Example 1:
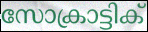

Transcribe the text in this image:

സോക്രാട്ടിക്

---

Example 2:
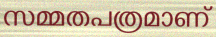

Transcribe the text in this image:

സമ്മതപത്രമാണ്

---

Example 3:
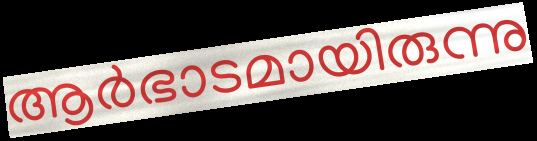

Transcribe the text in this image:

ആർഭാടമായിരുന്നു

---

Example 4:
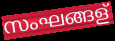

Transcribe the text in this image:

സംഘങ്ങള്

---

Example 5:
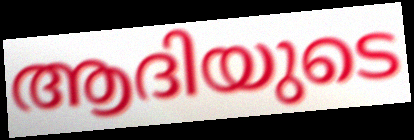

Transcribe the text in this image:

ആദിയുടെ